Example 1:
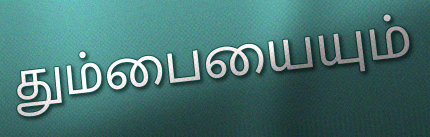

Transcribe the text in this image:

தும்பையையும்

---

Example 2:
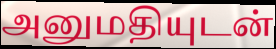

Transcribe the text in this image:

அனுமதியுடன்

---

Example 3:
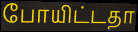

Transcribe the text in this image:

போயிட்டதா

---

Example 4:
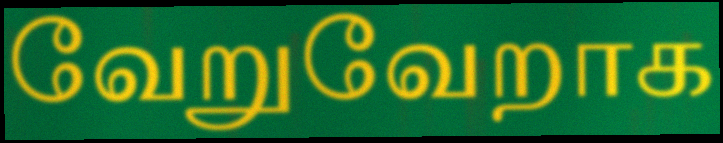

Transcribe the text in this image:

வேறுவேறாக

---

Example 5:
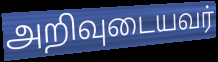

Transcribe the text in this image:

அறிவுடையவர்